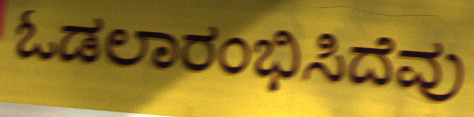
ಓಡಲಾರಂಭಿಸಿದೆವು